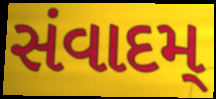
સંવાદમ્